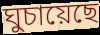
ঘুচায়েছে